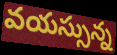
వయస్సున్న